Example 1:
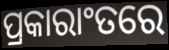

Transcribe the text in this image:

ପ୍ରକାରାଂତରେ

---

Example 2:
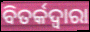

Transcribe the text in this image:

ବିତର୍କଦ୍ୱାରା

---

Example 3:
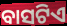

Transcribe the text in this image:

ବାସଟିଏ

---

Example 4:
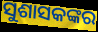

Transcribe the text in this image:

ସୁଶାସକଙ୍କର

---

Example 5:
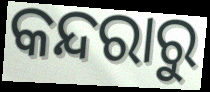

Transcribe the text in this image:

କନ୍ଦରାରୁ